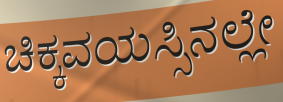
ಚಿಕ್ಕವಯಸ್ಸಿನಲ್ಲೇ